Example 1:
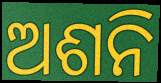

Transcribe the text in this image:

ଅଶନି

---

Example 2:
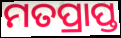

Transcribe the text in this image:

ମତପ୍ରାପ୍ତ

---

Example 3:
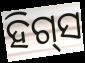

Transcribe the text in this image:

ହିଗ୍‌ସ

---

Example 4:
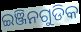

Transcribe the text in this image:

ଇଞ୍ଜିନଗୁଡିକ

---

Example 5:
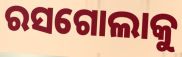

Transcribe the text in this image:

ରସଗୋଲାକୁ